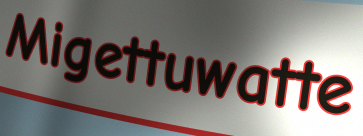
Migettuwatte